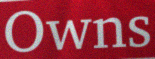
Owns